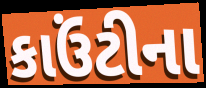
કાઉંટીના